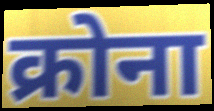
क्रोना